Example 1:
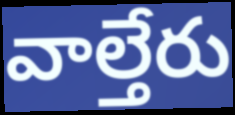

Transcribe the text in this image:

వాల్తేరు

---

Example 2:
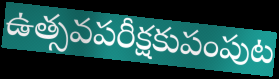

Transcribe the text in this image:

ఉత్సవపరీక్షకుపంపుట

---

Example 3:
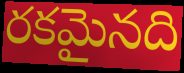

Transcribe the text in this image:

రకమైనది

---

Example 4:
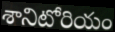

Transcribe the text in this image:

శానిటోరియం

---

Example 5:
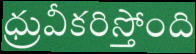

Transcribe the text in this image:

ధ్రువీకరిస్తోంది